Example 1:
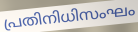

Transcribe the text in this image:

പ്രതിനിധിസംഘം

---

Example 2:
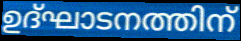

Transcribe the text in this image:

ഉദ്ഘാടനത്തിന്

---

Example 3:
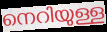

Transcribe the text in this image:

നെറിയുള്ള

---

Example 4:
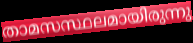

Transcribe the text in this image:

താമസസ്ഥലമായിരുന്നു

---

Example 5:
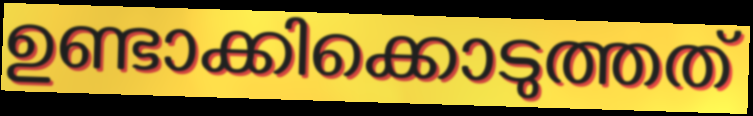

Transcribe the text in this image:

ഉണ്ടാക്കിക്കൊടുത്തത്